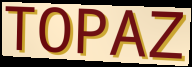
TOPAZ